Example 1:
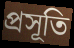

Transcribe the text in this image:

প্ৰসূতি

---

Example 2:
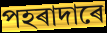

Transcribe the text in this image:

পহৰাদাৰে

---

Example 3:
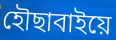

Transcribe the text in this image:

হৌছাবাইয়ে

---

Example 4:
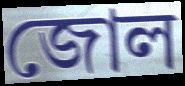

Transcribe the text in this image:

জোল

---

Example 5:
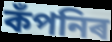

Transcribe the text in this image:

কঁপনিৰ